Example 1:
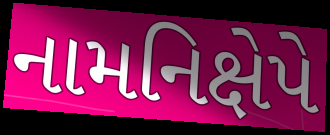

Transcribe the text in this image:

નામનિક્ષેપે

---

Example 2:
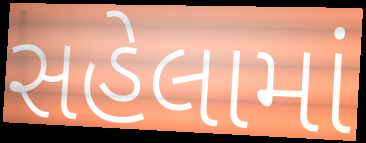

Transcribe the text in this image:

સહેલામાં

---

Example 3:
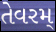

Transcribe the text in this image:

તેવરમ્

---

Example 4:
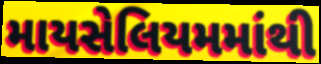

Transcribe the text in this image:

માયસેલિયમમાંથી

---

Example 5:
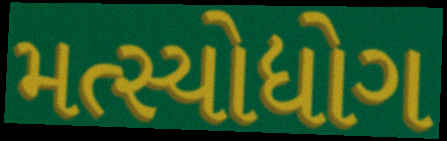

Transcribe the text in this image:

મત્સ્યોદ્યોગ